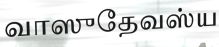
வாஸுதேவஸ்ய